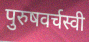
पुरुषवर्चस्वी